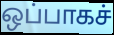
ஒப்பாகச்